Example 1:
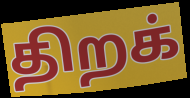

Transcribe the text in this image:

திறக்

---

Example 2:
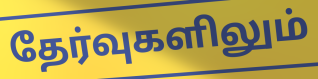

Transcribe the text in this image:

தேர்வுகளிலும்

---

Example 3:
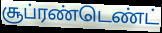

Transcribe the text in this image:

சூப்ரண்டெண்ட்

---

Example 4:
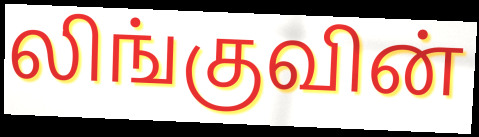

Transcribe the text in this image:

லிங்குவின்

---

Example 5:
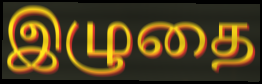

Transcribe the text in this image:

இழுதை